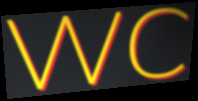
WC